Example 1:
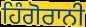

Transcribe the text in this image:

ਹਿੰਗੋਰਾਨੀ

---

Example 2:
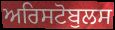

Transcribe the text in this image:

ਅਰਿਸਟੋਬੁਲਸ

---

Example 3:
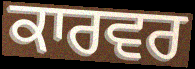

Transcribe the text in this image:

ਕਾਰਵਰ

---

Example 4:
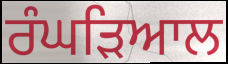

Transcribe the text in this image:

ਰੰਘੜਿਆਲ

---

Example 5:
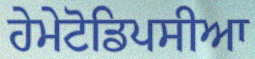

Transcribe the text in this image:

ਹੇਮੇਟੋਡਿਪਸੀਆ